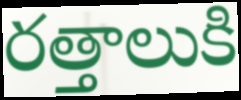
రత్తాలుకి